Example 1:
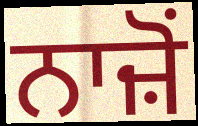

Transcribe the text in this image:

ਨਾਜ਼ੋਂ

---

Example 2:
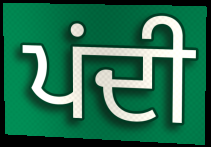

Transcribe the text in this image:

ਪਂਦੀ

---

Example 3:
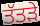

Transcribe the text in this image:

ਤੱਤੜੇ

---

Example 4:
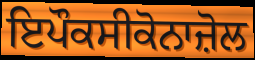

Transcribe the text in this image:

ਇਪੌਕਸੀਕੋਨਾਜ਼ੋਲ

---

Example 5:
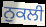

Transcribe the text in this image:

ਨੁਕਲੀ